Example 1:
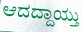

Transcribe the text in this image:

ಆದದ್ದಾಯ್ತು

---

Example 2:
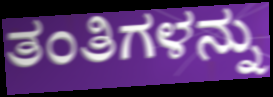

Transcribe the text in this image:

ತಂತಿಗಳನ್ನು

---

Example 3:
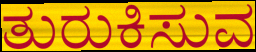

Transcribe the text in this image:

ತುರುಕಿಸುವ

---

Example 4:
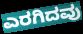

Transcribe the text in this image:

ಎರಗಿದವು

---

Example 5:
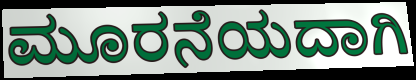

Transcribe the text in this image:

ಮೂರನೆಯದಾಗಿ